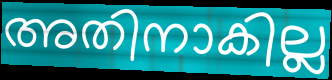
അതിനാകില്ല